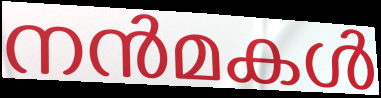
നൻമകൾ